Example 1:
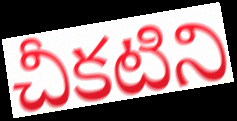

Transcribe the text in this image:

చీకటిని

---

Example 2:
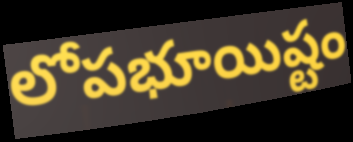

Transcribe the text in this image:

లోపభూయిష్టం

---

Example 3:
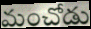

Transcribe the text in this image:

మంచోడు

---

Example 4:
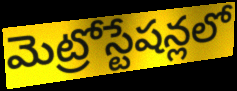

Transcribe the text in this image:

మెట్రోస్టేషన్లలో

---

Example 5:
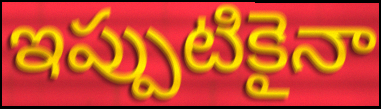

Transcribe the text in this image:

ఇప్పుటికైనా